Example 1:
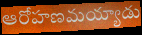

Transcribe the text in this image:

ఆరోహణమయ్యాడు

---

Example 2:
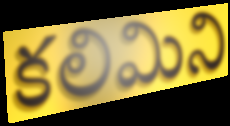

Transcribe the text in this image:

కలిమిని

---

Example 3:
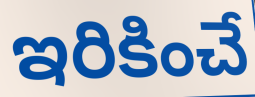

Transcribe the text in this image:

ఇరికించే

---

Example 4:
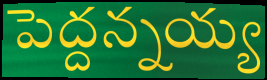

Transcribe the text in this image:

పెద్దన్నయ్య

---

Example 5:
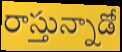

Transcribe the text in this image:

రాస్తున్నాడో